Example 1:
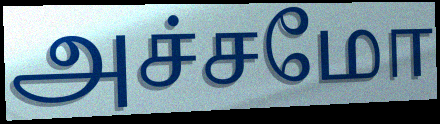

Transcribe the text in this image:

அச்சமோ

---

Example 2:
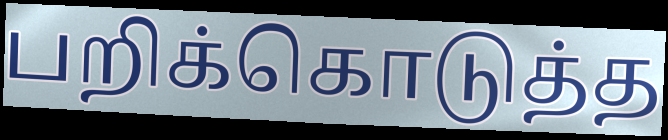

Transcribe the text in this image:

பறிக்கொடுத்த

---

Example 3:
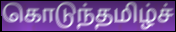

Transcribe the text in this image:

கொடுந்தமிழ்ச்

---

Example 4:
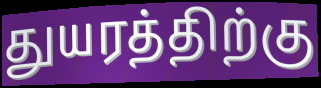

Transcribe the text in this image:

துயரத்திற்கு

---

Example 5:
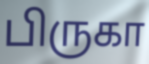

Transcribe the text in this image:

பிருகா